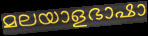
മലയാളഭാഷാ